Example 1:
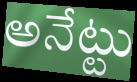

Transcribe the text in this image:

అనేట్టు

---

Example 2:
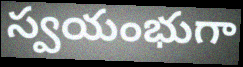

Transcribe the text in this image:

స్వయంభుగా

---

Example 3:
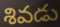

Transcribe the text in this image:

శివడు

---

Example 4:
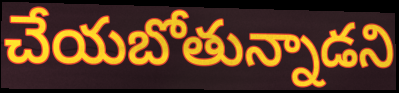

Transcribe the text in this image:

చేయబోతున్నాడని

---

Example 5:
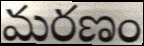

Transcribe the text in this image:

మరణం